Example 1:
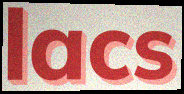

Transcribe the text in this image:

lacs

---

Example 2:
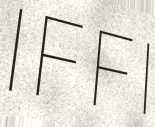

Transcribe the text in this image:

IFFI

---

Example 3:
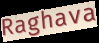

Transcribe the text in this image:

Raghava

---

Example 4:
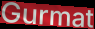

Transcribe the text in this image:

Gurmat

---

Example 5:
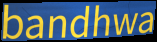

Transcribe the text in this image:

bandhwa